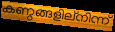
കണ്ഠങ്ങളില്നിന്ന്